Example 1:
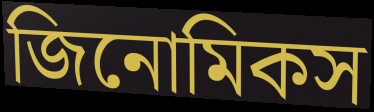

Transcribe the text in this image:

জিনোমিকস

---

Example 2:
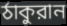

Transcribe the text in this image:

ঠাকুরান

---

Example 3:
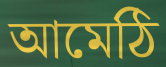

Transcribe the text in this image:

আমেঠি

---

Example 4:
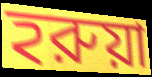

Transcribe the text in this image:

হরুয়া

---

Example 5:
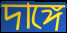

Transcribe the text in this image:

দাঙ্গে